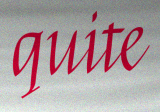
quite